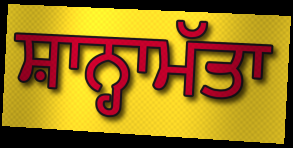
ਸ਼ਾਨ੍ਹਾਮੱਤਾ